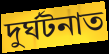
দুৰ্ঘটনাত